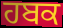
ਹਬਕ